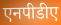
एनपीडीए